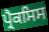
ਪ੍ਰੈਕਸਿਸ